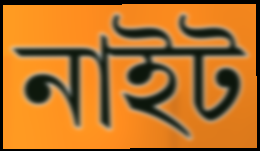
নাইট